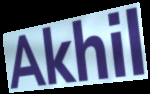
Akhil